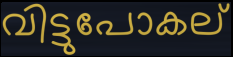
വിട്ടുപോകല്